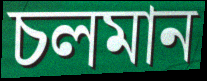
চলমান